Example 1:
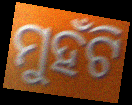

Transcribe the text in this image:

ମୁହଁଟି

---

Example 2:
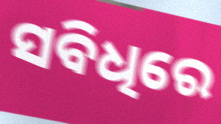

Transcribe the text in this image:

ସବିଧିରେ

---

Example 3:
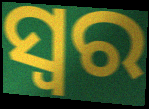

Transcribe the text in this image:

ସ୍ବର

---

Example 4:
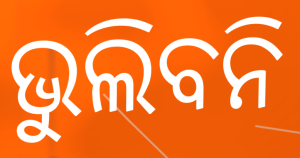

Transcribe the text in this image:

ଭୁଲିବନି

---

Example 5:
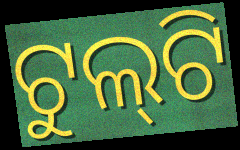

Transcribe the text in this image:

ଟୁଲ୍‌ଟି